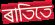
ৰাতিতে